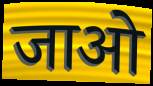
जाओ